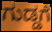
ಗುಡ್ಡಗೆ